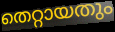
തെറ്റായതും